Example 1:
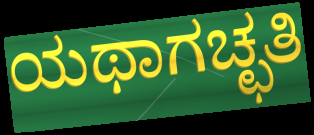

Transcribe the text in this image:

ಯಥಾಗಚ್ಛತಿ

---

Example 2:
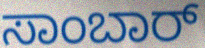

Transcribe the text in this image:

ಸಾಂಬಾರ್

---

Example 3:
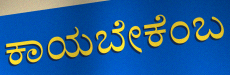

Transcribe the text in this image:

ಕಾಯಬೇಕೆಂಬ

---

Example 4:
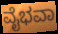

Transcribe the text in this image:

ವೈಭವಾ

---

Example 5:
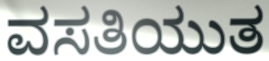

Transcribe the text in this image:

ವಸತಿಯುತ